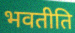
भवतीति